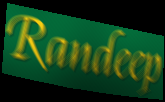
Randeep